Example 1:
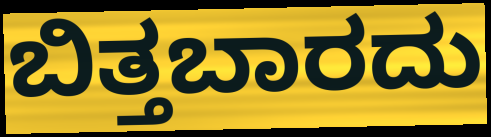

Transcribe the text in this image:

ಬಿತ್ತಬಾರದು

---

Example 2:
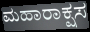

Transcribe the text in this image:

ಮಹಾರಾಕ್ಷಸ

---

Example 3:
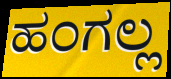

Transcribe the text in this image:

ಹಂಗಲ್ಲ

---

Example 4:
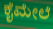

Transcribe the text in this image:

ಕೈಮೇಲೆ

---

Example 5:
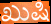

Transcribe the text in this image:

ಖುಷಿ